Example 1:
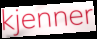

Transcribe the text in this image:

kjenner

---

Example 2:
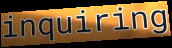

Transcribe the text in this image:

inquiring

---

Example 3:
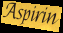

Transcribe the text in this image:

Aspirin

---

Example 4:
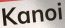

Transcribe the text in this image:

Kanoi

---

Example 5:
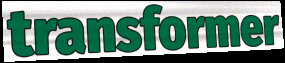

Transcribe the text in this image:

transformer